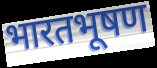
भारतभूषण